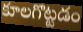
కూలగొట్టడం